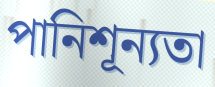
পানিশূন্যতা